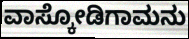
ವಾಸ್ಕೋಡಿಗಾಮನು